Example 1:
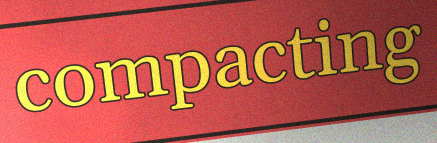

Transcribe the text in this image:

compacting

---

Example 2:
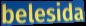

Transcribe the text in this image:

belesida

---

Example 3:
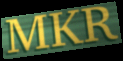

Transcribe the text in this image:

MKR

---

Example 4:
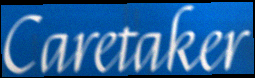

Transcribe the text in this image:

Caretaker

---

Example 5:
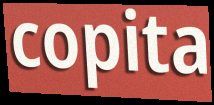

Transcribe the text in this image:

copita